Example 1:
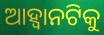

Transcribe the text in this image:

ଆହ୍ଵାନଟିକୁ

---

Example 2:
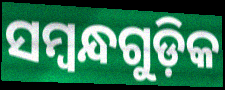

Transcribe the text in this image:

ସମ୍ବନ୍ଧଗୁଡ଼ିକ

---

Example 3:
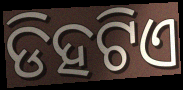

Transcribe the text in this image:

ଡିହଟିଏ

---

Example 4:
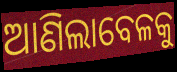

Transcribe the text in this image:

ଆଣିଲାବେଳକୁ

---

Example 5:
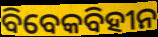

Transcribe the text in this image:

ବିବେକବିହୀନ